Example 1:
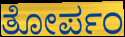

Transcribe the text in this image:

ತೋರ್ಪಂ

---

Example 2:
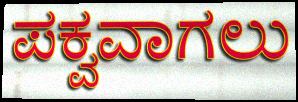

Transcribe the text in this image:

ಪಕ್ವವಾಗಲು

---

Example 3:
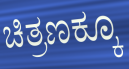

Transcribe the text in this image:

ಚಿತ್ರಣಕ್ಕೂ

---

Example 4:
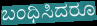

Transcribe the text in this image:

ಬಂಧಿಸಿದರೂ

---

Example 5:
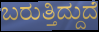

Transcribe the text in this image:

ಬರುತ್ತಿದ್ದುದೆ